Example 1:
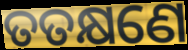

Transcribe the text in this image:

ତତକ୍ଷଣେ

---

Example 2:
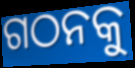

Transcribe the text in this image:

ଗଠନକୁ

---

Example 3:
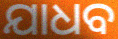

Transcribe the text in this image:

ଯାଧବ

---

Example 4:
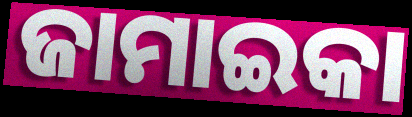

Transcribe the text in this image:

ଜାମାଇକା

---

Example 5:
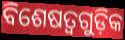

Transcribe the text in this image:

ବିଶେଷତ୍ୱଗୁଡ଼ିକ